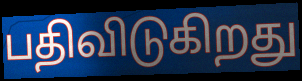
பதிவிடுகிறது